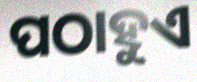
ପଠାହୁଏ